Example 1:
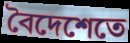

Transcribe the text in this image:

বৈদেশেতে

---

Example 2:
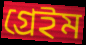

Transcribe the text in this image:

গ্রেইম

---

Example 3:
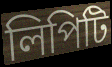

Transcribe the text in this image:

লিপিটি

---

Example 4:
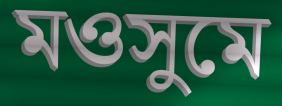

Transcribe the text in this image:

মওসুমে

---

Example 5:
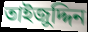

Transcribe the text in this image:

তাইজুদ্দিন